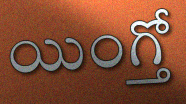
యింగ్తో